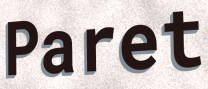
Paret